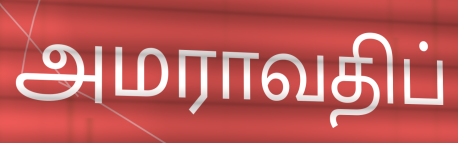
அமராவதிப்